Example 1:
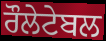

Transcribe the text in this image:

ਰੌਲੇਟੇਬਲ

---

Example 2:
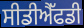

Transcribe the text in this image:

ਸੀਡੀਐੱਫਡੀ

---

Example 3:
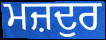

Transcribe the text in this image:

ਮਜ਼ਦੁਰ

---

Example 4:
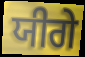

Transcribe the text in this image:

ਯੀਗੇ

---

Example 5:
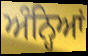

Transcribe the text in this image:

ਅੰਨ੍ਹਿਆਂ